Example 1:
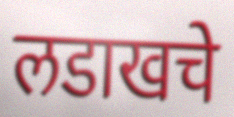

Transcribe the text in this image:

लडाखचे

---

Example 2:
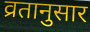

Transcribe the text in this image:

व्रतानुसार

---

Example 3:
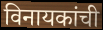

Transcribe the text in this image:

विनायकांची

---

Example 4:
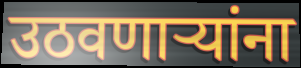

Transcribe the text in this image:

उठवणाऱ्यांना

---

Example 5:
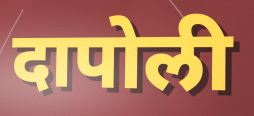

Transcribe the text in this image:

दापोली